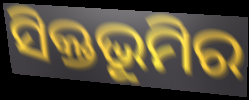
ସିକ୍ତଭୂମିର